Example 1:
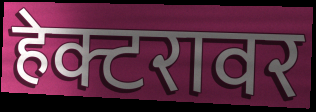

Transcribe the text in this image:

हेक्टरावर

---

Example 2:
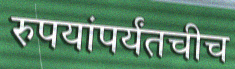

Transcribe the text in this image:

रुपयांपर्यंतचीच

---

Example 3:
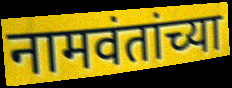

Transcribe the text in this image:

नामवंतांच्या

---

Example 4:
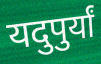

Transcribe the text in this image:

यदुपुर्यां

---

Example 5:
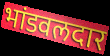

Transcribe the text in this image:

भांडवलदार